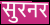
सुरनर